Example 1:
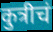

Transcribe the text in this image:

कुत्रीचं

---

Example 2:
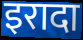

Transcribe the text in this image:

इरादा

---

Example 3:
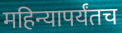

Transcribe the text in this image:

महिन्यापर्यंतच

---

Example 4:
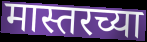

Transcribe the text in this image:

मास्तरच्या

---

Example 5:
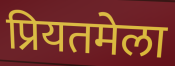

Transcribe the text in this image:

प्रियतमेला